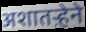
अशातऱ्‍हेने